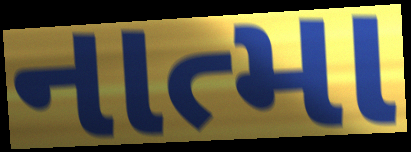
નાત્મા